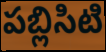
పబ్లిసిటి